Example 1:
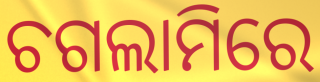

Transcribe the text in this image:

ଚଗଲାମିରେ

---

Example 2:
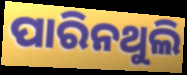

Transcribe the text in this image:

ପାରିନଥୁଲି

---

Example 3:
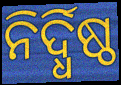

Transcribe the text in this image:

ନିର୍ଦ୍ଧିଷ୍ଠ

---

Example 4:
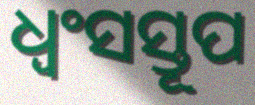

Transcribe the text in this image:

ଧ୍ୱଂସସ୍ତୂପ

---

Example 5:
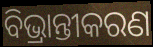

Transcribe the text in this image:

ବିଭ୍ରାନ୍ତୀକରଣ